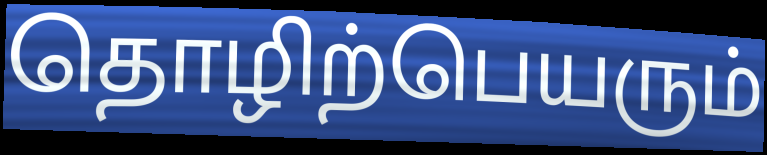
தொழிற்பெயரும்